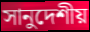
সানুদেশীয়